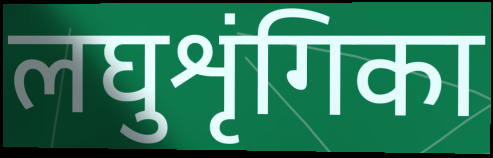
लघुशृंगिका